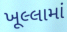
ખૂલ્લામાં